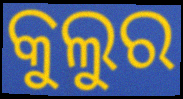
କୁଲୁର